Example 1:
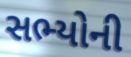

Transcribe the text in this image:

સભ્યોની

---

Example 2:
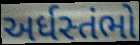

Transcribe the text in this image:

અર્ધસ્તંભો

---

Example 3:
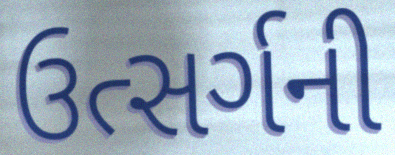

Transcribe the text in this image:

ઉત્સર્ગની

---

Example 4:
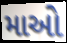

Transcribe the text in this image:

માઓ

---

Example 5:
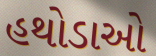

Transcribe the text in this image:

હથોડાઓ